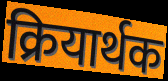
क्रियार्थक